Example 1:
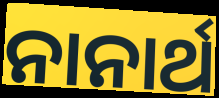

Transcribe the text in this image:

ନାନାର୍ଥ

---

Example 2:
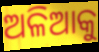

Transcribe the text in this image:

ଅଳିଆକୁ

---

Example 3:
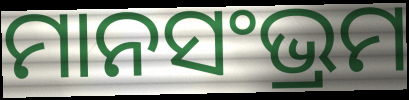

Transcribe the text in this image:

ମାନସଂଭ୍ରମ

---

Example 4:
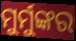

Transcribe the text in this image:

ମୁର୍ମୁଙ୍କର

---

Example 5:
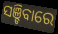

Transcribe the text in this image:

ସଞ୍ଚିବାରେ